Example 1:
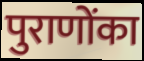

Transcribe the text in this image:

पुराणोंका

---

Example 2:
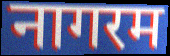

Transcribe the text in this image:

नागरम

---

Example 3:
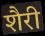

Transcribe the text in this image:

शैरी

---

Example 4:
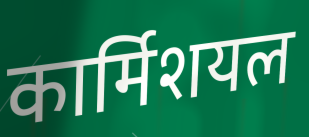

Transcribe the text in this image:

कार्मिशयल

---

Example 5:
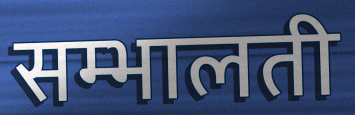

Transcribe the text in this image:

सम्भालती